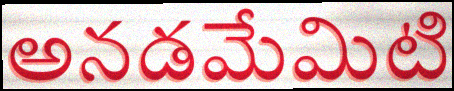
అనడమేమిటి